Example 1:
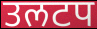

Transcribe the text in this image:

उलटप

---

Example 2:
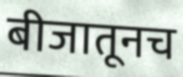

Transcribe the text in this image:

बीजातूनच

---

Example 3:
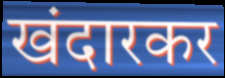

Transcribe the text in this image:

खंदारकर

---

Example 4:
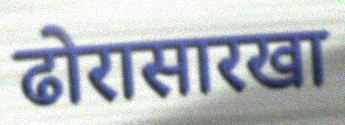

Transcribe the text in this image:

ढोरासारखा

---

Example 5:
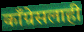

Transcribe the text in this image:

काँग्रेसलाही